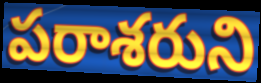
పరాశరుని